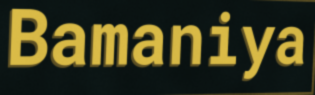
Bamaniya